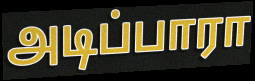
அடிப்பாரா